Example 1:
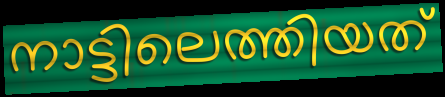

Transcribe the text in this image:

നാട്ടിലെത്തിയത്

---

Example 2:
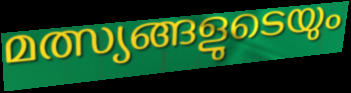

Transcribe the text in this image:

മത്സ്യങ്ങളുടെയും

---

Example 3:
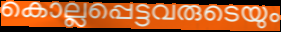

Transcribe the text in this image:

കൊല്ലപ്പെട്ടവരുടെയും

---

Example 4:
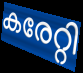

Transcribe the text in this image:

കരേറ്റി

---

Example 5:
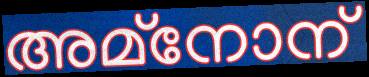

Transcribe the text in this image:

അമ്നോന്